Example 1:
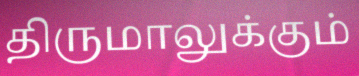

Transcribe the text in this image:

திருமாலுக்கும்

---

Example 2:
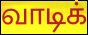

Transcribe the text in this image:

வாடிக்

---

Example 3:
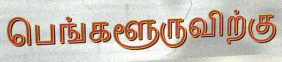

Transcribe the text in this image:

பெங்களூருவிற்கு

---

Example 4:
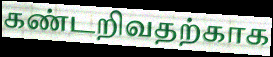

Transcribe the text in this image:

கண்டறிவதற்காக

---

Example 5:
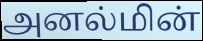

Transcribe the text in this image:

அனல்மின்